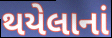
થયેલાનાં